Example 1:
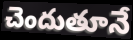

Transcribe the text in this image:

చెందుతూనే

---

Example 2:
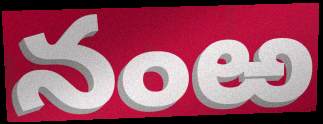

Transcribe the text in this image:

నంఱ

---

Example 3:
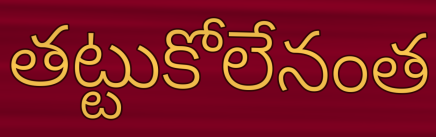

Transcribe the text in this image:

తట్టుకోలేనంత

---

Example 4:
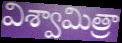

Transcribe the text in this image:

విశ్వామిత్రా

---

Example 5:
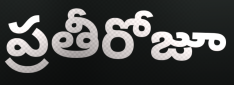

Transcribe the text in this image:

ప్రతీరోజూ